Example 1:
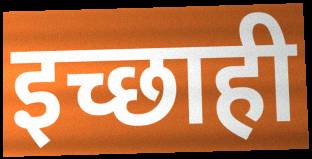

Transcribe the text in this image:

इच्छाही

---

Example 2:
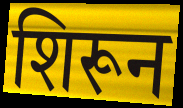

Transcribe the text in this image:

शिरून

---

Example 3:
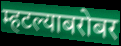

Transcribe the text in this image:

म्हटल्याबरोबर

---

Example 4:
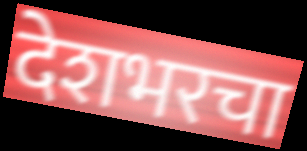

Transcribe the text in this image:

देशभरचा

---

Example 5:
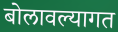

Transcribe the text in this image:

बोलावल्यागत